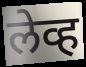
लेव्ह